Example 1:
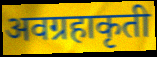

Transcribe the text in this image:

अवग्रहाकृती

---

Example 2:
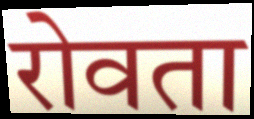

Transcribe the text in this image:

रोवता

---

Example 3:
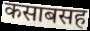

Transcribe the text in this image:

कसाबसह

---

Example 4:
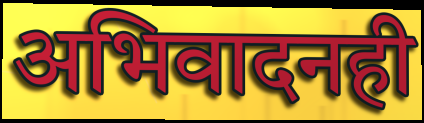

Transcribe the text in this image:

अभिवादनही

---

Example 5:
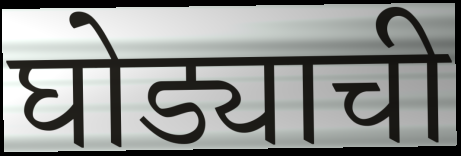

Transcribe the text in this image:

घोड्याची